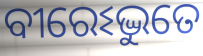
ବୀରେଽଦ୍ଭୁତେ